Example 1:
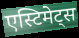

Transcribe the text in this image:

एस्टिमेट्स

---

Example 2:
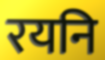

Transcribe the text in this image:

रयनि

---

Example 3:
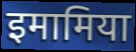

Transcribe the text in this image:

इमामिया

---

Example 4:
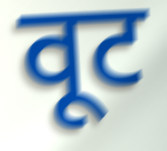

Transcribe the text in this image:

वूट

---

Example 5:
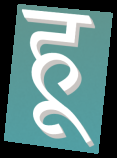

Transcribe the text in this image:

हू